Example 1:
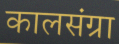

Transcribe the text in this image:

कालसंग्रा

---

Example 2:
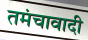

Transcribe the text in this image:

तमंचावादी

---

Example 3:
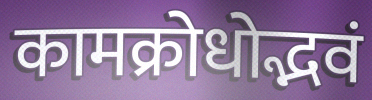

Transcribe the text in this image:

कामक्रोधोद्भवं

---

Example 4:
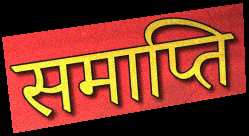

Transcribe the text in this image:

समाप्ति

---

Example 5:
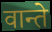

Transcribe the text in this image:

वान्ते